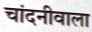
चांदनीवाला